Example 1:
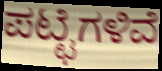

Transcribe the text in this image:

ಪಟ್ಟೆಗಳಿವೆ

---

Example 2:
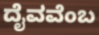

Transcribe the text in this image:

ದೈವವೆಂಬ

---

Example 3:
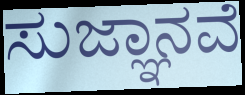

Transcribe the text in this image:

ಸುಜ್ಞಾನವೆ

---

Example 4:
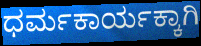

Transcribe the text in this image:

ಧರ್ಮಕಾರ್ಯಕ್ಕಾಗಿ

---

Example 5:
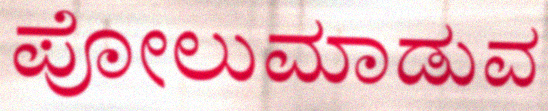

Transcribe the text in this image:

ಪೋಲುಮಾಡುವ